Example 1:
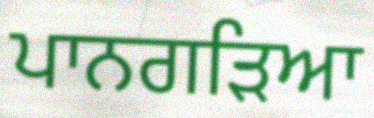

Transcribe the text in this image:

ਪਾਨਗੜਿਆ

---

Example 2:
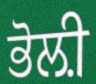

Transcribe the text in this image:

ਭੋਲ਼ੀ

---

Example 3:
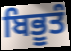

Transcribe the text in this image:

ਬਿਭੂਤੰ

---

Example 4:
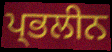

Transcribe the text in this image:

ਪ੍ਭਲੀਨ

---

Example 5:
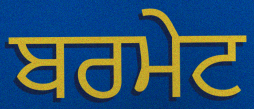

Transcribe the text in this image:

ਬਰਮੇਟ